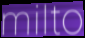
milto